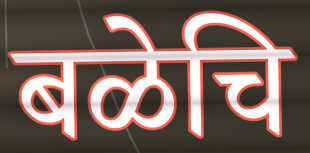
बळेचि